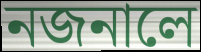
নজনালে